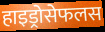
हाइड्रोसेफलस